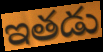
ఇతడు